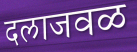
दलाजवळ